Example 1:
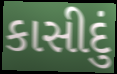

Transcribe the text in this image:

કાસીદું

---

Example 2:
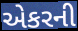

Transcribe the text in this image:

એકરની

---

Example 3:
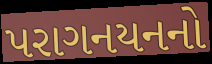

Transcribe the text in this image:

પરાગનયનનો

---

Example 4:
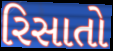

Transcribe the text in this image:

રિસાતો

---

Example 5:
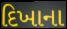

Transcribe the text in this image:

દિખાના